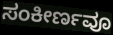
ಸಂಕೀರ್ಣವೂ